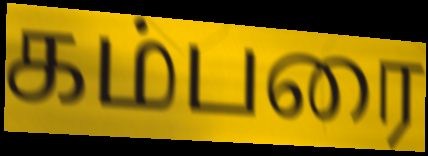
கம்பரை